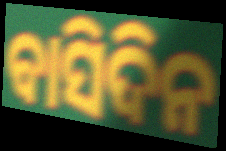
ବାସିଦିନ